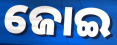
ଜୋଇ